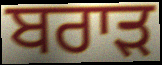
ਬਰਾਡ਼